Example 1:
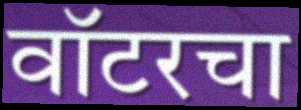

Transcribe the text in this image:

वॉटरचा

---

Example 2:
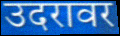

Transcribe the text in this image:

उदरावर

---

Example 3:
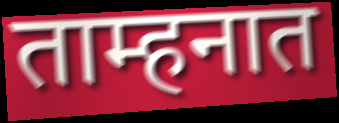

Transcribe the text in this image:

ताम्हनात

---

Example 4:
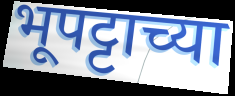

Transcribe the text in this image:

भूपट्टाच्या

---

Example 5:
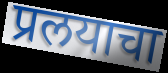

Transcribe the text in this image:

प्रलयाचा